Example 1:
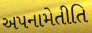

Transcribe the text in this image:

અપનામેતીતિ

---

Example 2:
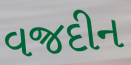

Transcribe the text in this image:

વજ્રદીન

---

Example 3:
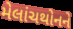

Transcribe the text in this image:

મેલાંચથોનને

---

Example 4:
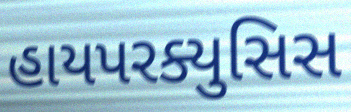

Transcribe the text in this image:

હાયપરક્યુસિસ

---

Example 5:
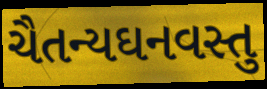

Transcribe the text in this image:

ચૈતન્યઘનવસ્તુ